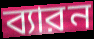
ব্যারন